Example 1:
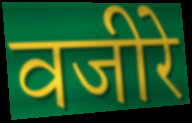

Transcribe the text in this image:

वजीरे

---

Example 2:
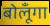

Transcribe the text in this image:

बोलूँगा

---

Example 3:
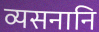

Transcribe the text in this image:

व्यसनानि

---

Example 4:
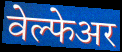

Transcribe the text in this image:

वेल्फेअर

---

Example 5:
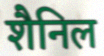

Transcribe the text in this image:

शैनिल